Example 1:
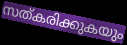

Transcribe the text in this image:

സത്കരിക്കുകയും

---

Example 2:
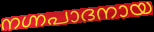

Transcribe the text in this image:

നഗ്നപാദനായ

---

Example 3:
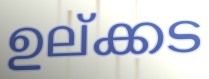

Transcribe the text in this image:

ഉല്ക്കട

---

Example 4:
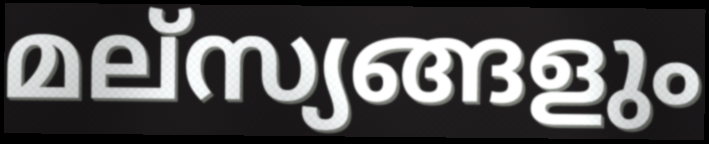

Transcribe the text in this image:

മല്സ്യങ്ങളും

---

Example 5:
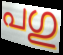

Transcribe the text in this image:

പഗു